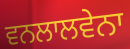
ਵਨਲਾਲਵੇਨਾ